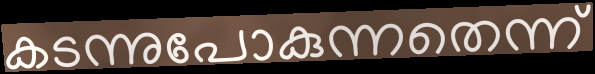
കടന്നുപോകുന്നതെന്ന്